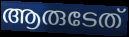
ആരുടേത്